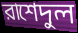
রাশেদুল